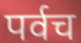
पर्वच